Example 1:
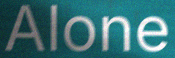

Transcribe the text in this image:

Alone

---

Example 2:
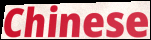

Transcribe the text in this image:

Chinese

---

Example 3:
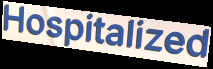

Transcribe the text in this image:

Hospitalized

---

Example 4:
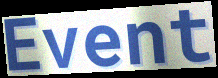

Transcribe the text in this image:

Event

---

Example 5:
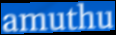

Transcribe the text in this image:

amuthu